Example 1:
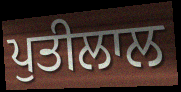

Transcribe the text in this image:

ਪੁਤੀਲਾਲ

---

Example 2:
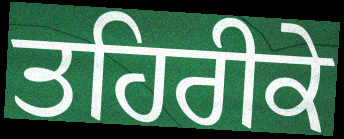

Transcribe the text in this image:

ਤਹਿਰੀਕੇ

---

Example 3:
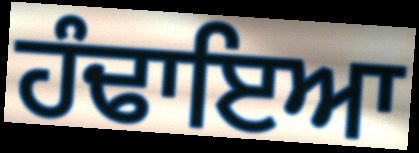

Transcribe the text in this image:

ਹੰਢਾਇਆ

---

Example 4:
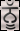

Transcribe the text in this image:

ਨੂੱ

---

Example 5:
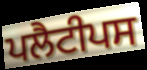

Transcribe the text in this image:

ਪਲੈਟੀਪਸ